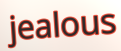
jealous